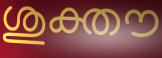
ശുക്തൗ